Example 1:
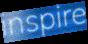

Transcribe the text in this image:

inspire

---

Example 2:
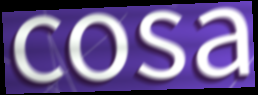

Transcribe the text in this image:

cosa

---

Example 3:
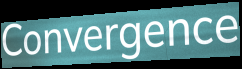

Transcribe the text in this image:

Convergence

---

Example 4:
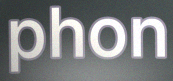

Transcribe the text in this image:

phon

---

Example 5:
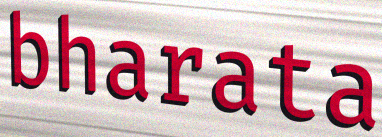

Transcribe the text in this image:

bharata